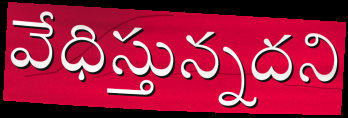
వేధిస్తున్నదని